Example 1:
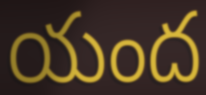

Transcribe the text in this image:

యంద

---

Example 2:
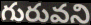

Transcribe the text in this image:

గురువని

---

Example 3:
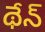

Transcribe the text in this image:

థేన్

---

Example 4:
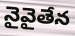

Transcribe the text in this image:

నైవైతేన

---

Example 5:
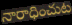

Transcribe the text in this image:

నారాధించుట